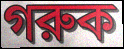
গরুক